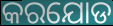
କରଯୋଡ